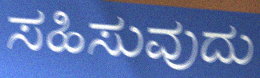
ಸಹಿಸುವುದು